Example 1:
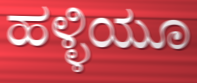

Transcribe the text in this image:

ಹಳ್ಳಿಯೂ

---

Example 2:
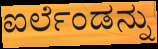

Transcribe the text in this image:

ಐರ್ಲೆಂಡನ್ನು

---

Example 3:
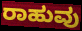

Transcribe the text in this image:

ರಾಹುವು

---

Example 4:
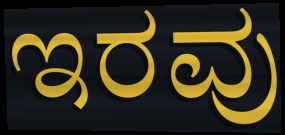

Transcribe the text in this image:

ಇರವು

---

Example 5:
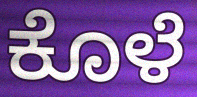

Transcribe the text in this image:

ಕೊಳೆ